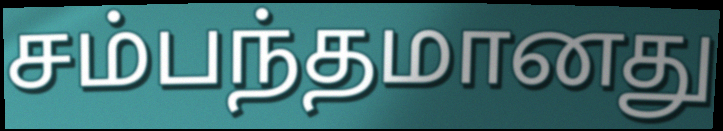
சம்பந்தமானது